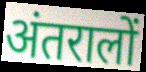
अंतरालों